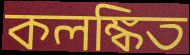
কলঙ্কিত